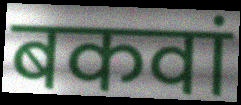
बकवां